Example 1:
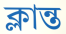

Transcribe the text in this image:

ক্লান্ত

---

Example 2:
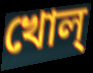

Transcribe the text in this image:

খোল্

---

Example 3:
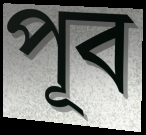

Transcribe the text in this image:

পূব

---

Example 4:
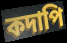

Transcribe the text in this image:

কদাপি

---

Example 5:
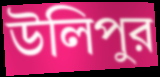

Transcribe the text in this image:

উলিপুর